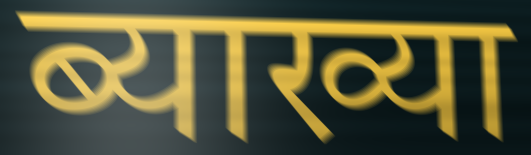
ब्याख्या